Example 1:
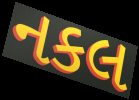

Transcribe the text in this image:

નકલ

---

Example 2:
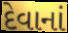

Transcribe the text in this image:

દેવાનાં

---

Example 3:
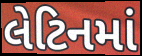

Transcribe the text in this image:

લેટિનમાં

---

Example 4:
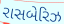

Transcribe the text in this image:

રાસબેરિઝ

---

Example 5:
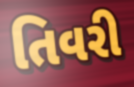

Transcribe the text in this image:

તિવરી